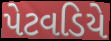
પેટવડિયે